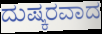
ದುಷ್ಕರವಾದ